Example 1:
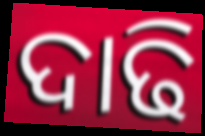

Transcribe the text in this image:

ଦାଢି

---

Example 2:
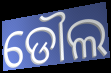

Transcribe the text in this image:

ଡୌଲ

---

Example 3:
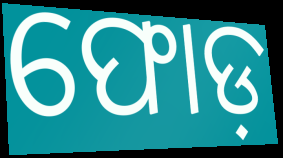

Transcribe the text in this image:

ଫୋଡ଼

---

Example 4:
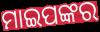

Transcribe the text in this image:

ମାଇପଙ୍କର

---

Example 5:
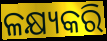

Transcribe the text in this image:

ଳକ୍ଷ୍ୟକରି